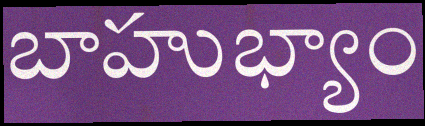
బాహుభ్యాం